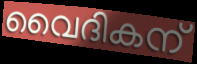
വൈദികന്